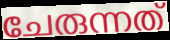
ചേരുന്നത്